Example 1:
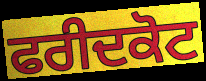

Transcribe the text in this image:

ਫਰੀਦਕੋਟ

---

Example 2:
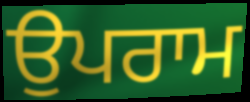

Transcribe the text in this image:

ਉਪਰਾਮ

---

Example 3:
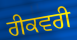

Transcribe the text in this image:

ਰੀਕਵਰੀ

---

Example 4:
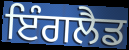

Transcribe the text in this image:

ਇੰਗਲੈਡ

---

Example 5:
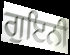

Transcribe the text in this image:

ਗੁਇਨੀ